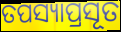
ତପସ୍ୟାପ୍ରସୂତ